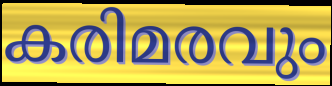
കരിമരവും